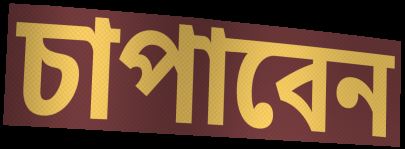
চাপাবেন